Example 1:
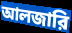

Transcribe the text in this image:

আলজারি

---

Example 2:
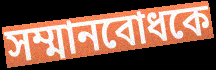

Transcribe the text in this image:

সম্মানবোধকে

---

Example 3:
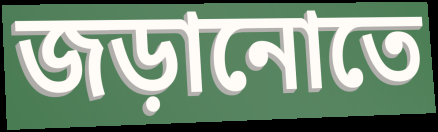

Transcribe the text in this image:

জড়ানোতে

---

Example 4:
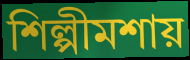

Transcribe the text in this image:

শিল্পীমশায়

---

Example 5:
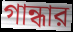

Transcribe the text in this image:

গান্ধার